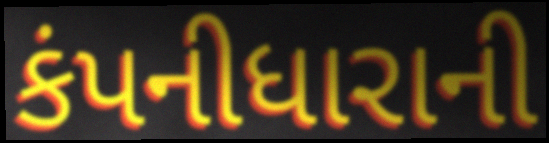
કંપનીધારાની